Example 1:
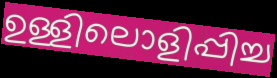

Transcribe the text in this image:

ഉള്ളിലൊളിപ്പിച്ച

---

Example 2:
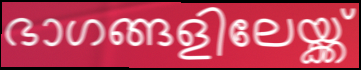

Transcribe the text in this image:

ഭാഗങ്ങളിലേയ്ക്ക്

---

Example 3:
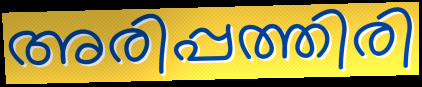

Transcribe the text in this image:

അരിപ്പത്തിരി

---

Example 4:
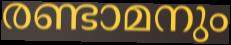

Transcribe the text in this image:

രണ്ടാമനും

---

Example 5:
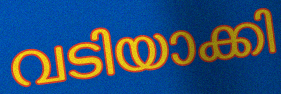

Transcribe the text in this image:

വടിയാക്കി